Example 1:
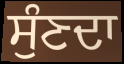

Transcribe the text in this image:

ਸੁੰਣਦਾ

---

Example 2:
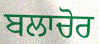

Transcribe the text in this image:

ਬਲਾਚੋਰ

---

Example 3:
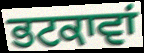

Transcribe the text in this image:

ਭਟਕਾਵਾਂ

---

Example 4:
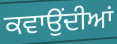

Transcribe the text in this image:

ਕਵਾਉਂਦੀਆਂ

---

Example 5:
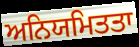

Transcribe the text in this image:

ਅਨਿਯਮਿਤਤਾ